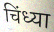
चिंध्या